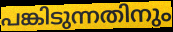
പങ്കിടുന്നതിനും